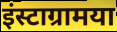
इंस्टाग्रामया